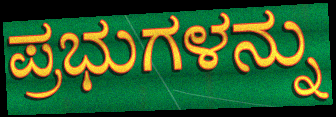
ಪ್ರಭುಗಳನ್ನು